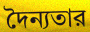
দৈন্যতার